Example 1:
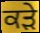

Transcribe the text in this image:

ਕੜੇ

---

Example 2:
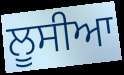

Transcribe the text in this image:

ਲੂਸੀਆ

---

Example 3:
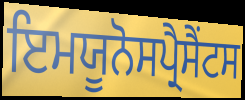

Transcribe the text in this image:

ਇਮਯੂਨੋਸਪ੍ਰੈਸੈਂਟਸ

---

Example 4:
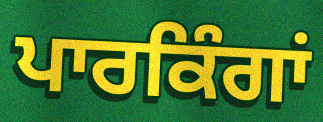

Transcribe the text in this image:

ਪਾਰਕਿੰਗਾਂ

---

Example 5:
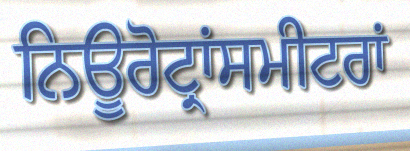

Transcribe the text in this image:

ਨਿਊਰੋਟ੍ਰਾਂਸਮੀਟਰਾਂ